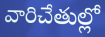
వారిచేతుల్లో